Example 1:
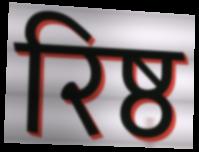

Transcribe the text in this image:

रिष्ठ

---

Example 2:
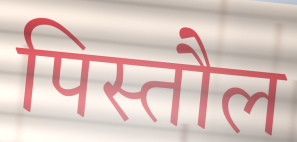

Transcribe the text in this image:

पिस्तौल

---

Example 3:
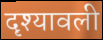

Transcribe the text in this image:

दृश्यावली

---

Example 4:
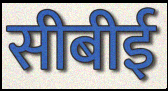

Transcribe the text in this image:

सीबीई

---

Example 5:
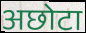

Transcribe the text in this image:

अछोटा